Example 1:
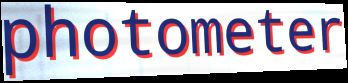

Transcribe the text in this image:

photometer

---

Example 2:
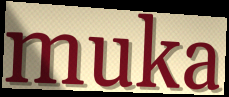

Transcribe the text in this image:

muka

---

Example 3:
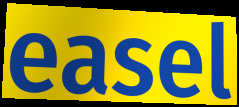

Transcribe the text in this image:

easel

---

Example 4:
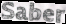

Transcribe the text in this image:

Saber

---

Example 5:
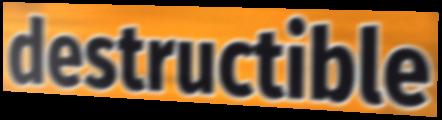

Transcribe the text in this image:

destructible